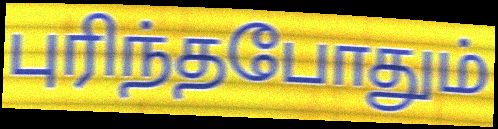
புரிந்தபோதும்